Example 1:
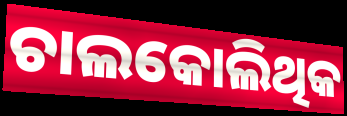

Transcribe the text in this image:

ଚାଲକୋଲିଥିକ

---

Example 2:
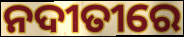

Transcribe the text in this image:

ନଦୀତୀରେ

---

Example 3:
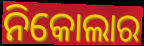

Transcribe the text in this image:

ନିକୋଲାର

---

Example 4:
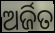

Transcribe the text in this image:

ଅର୍ଜିତ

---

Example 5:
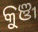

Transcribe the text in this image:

କୁଞ୍ଜ